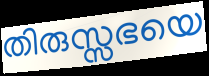
തിരുസ്സഭയെ